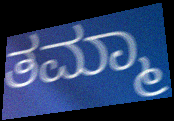
ತಮ್ಮಾ